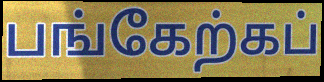
பங்கேற்கப்